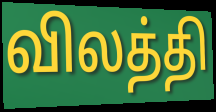
விலத்தி